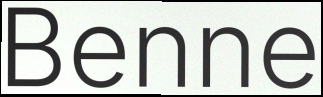
Benne